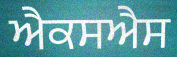
ਐਕਸਐਸ